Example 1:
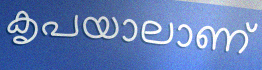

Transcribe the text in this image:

കൃപയാലാണ്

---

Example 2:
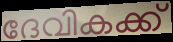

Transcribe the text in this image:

ദേവികക്ക്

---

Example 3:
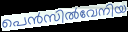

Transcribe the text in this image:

പെൻസിൽവേനിയ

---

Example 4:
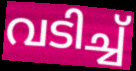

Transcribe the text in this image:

വടിച്ച്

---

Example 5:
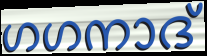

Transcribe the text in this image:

ഗഗനാദ്